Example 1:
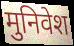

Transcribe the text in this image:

मुनिवेश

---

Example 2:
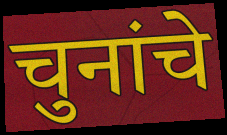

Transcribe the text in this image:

चुनांचे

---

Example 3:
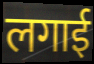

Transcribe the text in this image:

लगाई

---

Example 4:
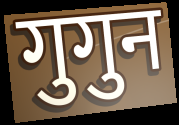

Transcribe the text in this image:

गुगुन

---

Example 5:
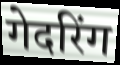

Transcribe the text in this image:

गेदरिंग